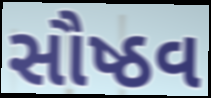
સૌષ્ઠવ